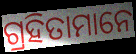
ଗ୍ରହିତାମାନେ